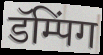
डॅम्पिंग